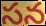
సన